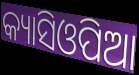
କ୍ୟାସିଓପିଆ